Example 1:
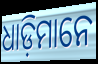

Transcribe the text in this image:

ଧାଡ଼ିମାନେ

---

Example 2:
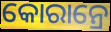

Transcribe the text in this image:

କୋରାନ୍ରେ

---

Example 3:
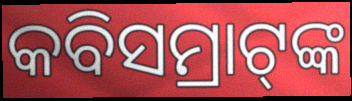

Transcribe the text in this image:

କବିସମ୍ରାଟ୍‌ଙ୍କ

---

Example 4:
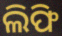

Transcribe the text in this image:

ଲିଫି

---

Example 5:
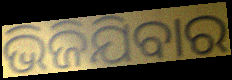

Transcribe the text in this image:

ଭିଜିଯିବାର